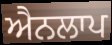
ਐਨਲਾਪ